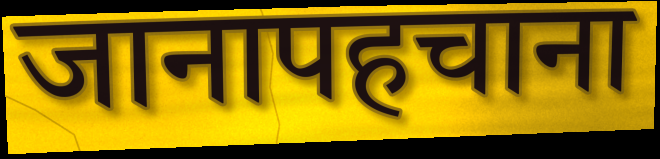
जानापहचाना